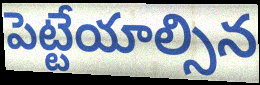
పెట్టేయాల్సిన